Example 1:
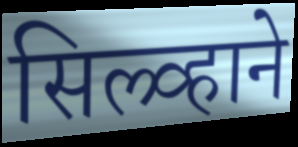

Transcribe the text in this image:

सिल्व्हाने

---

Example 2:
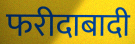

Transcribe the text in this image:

फरीदाबादी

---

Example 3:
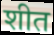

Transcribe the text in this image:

शीत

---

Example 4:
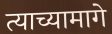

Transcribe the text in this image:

त्याच्यामागे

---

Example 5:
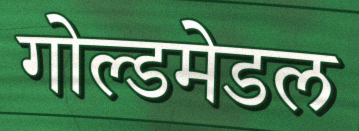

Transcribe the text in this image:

गोल्डमेडल